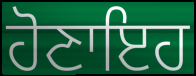
ਹੋਣਾਇਹ